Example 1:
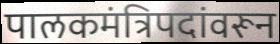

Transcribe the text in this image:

पालकमंत्रिपदांवरून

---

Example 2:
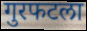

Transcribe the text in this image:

गुरफटला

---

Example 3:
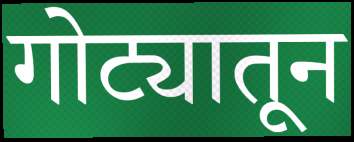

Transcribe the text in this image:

गोट्यातून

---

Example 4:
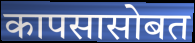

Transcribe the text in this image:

कापसासोबत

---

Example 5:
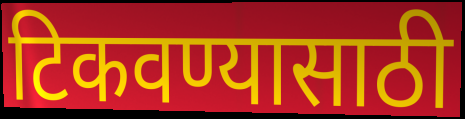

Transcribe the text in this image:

टिकवण्यासाठी